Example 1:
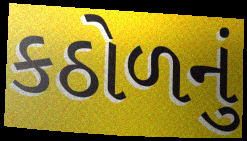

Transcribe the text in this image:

કઠોળનું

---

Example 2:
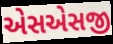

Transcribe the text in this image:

એસએસજી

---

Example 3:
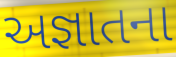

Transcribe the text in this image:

અજ્ઞાતના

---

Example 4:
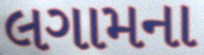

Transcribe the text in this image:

લગામના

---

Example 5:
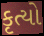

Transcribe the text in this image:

કૃત્યો